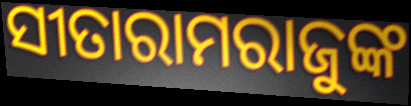
ସୀତାରାମରାଜୁଙ୍କ